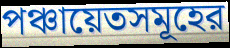
পঞ্চায়েতসমূহের